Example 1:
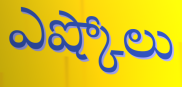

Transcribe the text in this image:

ఎష్కోలు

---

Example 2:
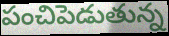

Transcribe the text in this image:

పంచిపెడుతున్న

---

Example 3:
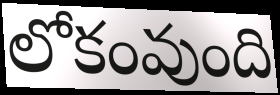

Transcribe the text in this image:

లోకంవుంది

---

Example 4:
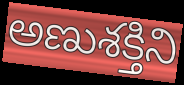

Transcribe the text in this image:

అణుశక్తిని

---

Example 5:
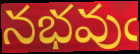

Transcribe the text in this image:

నభవుఁ